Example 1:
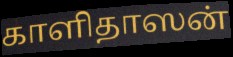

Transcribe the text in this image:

காளிதாஸன்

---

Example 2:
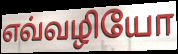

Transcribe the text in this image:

எவ்வழியோ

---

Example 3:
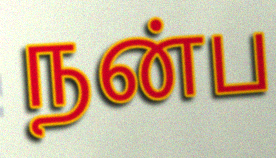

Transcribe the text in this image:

நன்ப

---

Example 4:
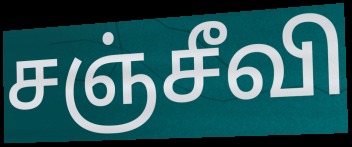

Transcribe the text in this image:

சஞ்சீவி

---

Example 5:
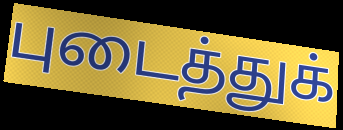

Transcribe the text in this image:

புடைத்துக்